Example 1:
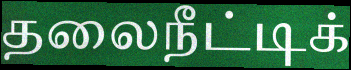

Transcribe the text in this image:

தலைநீட்டிக்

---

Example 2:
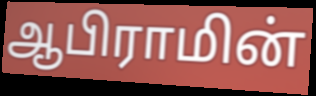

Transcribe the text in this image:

ஆபிராமின்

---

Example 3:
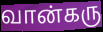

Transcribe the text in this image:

வான்கரு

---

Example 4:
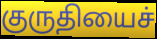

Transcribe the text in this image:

குருதியைச்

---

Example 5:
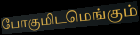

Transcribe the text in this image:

போகுமிடமெங்கும்